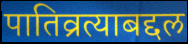
पातिव्रत्याबद्दल